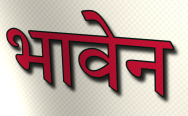
भावेन